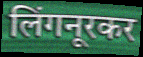
लिंगनूरकर